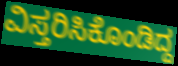
ವಿಸ್ತರಿಸಿಕೊಂಡಿದ್ದ